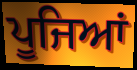
ਪੂਜਿਆਂ